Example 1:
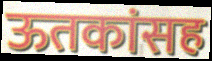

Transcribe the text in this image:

ऊतकांसह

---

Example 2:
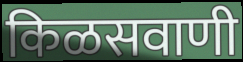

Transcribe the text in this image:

किळसवाणी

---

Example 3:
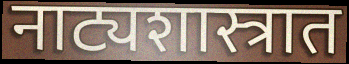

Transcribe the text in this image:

नाट्यशास्त्रात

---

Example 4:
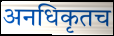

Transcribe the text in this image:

अनधिकृतच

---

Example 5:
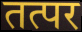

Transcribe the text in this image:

तत्पर